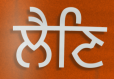
ਲੈਣਿ